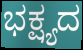
ಭಕ್ಷ್ಯದ